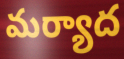
మర్యాద